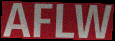
AFLW